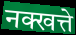
नक्खत्ते